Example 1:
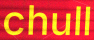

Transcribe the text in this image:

chull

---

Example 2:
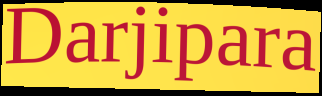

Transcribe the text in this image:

Darjipara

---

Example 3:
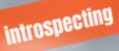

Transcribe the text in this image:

introspecting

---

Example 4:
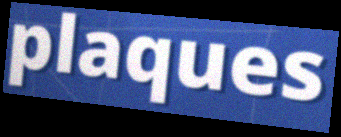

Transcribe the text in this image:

plaques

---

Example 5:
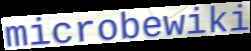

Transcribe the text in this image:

microbewiki